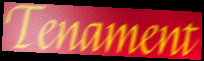
Tenament